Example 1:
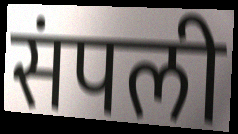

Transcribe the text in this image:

संपली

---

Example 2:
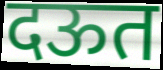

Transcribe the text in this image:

दऊत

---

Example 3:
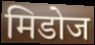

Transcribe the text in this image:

मिडोज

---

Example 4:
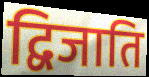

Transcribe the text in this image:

द्विजाति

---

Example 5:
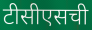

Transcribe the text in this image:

टीसीएसची